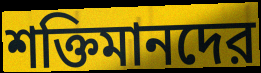
শক্তিমানদের